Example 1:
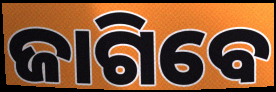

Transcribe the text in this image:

ଜାଗିବେ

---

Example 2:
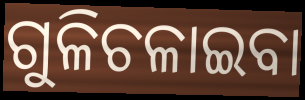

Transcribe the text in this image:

ଗୁଳିଚଳାଇବା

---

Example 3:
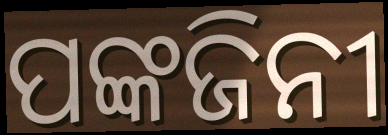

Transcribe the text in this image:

ପଙ୍କଜିନୀ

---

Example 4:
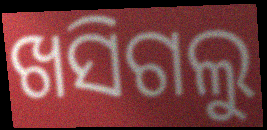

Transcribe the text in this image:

ଖସିଗଲୁ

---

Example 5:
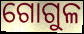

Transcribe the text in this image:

ଗୋଗୁଳ